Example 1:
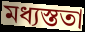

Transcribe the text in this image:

মধ্যস্ততা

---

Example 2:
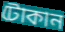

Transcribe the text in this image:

টোকান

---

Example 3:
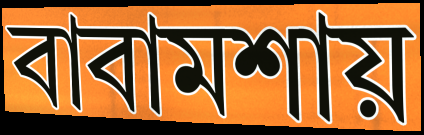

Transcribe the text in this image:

বাবামশায়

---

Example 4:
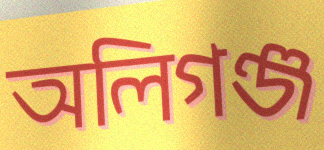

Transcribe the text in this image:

অলিগঞ্জ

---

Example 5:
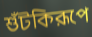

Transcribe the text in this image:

শুঁটকিরূপে